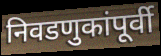
निवडणुकांपूर्वी